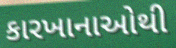
કારખાનાઓથી